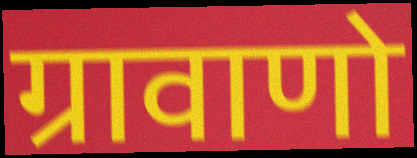
ग्रावाणो